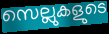
സെല്ലുകളുടെ